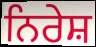
ਨਿਰੇਸ਼